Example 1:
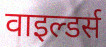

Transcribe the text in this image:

वाइल्डर्स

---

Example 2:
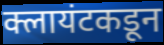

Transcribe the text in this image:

क्लायंटकडून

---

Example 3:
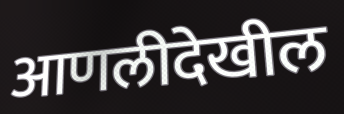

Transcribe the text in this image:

आणलीदेखील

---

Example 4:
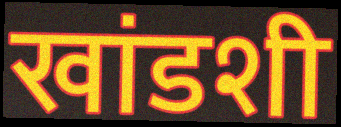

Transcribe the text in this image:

खांडशी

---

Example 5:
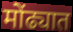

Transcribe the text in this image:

मोंढ्यात